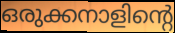
ഒരുക്കനാളിന്റെ